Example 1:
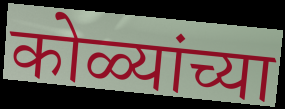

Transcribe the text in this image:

कोळ्यांच्या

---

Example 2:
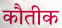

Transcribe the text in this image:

कौतीक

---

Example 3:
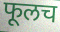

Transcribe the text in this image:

फूलच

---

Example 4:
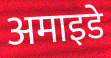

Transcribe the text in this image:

अमाइडे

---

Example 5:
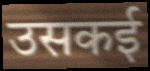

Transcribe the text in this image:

उसकई